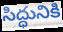
సిద్ధునికి